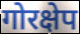
गोरक्षेप